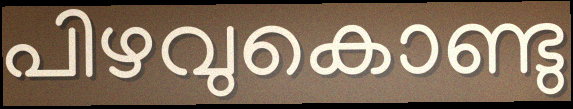
പിഴവുകൊണ്ടു